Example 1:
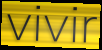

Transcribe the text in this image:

vivir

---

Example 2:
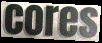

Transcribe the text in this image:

cores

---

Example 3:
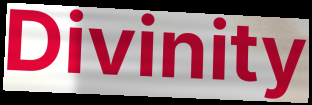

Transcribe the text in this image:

Divinity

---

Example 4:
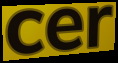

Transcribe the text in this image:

cer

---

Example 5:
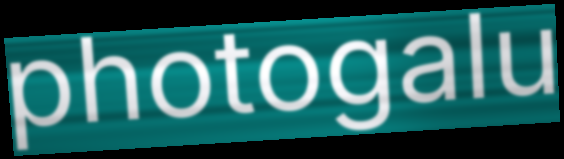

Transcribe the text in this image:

photogalu